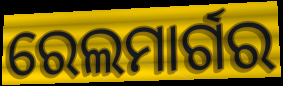
ରେଲମାର୍ଗର